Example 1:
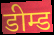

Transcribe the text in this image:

डीम्ड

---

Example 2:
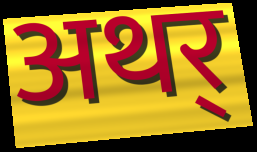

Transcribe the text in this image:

अथर्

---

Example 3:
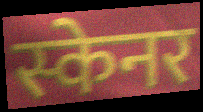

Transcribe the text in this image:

स्‍केनर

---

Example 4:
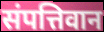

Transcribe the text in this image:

संपत्तिवान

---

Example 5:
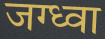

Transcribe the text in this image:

जग्ध्वा